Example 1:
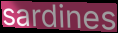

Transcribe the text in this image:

sardines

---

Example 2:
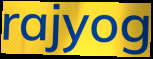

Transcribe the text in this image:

rajyog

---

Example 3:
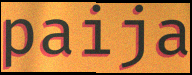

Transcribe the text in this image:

paija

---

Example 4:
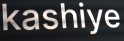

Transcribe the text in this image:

kashiye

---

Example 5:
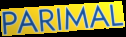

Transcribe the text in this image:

PARIMAL